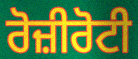
ਰੋਜ਼ੀਰੋਟੀ